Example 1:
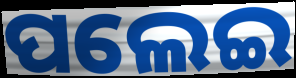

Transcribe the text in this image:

ପଲେଇ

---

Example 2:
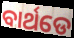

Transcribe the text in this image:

ବାର୍ଥଡେ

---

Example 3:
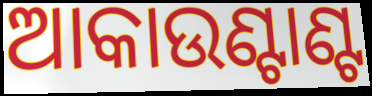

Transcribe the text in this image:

ଆକାଉଣ୍ଟାଣ୍ଟ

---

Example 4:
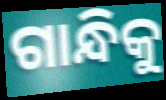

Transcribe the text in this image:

ଗାନ୍ଧିକୁ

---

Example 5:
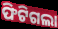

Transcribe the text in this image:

ଫିଟିଗଲା